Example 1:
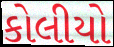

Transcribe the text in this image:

કોલીયો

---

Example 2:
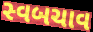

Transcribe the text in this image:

સ્વબચાવ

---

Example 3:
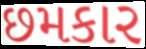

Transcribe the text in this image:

છમકાર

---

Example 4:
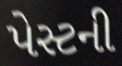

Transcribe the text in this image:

પેસ્ટની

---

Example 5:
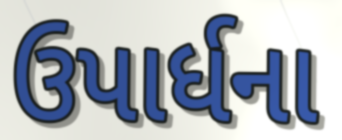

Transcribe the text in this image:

ઉપાર્ધના